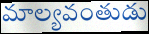
మాల్యవంతుడు